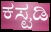
ಕಸ್ಟಡಿ